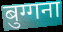
बुग्गना